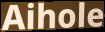
Aihole